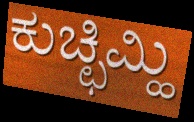
ಕುಚ್ಛಿಮ್ಹಿ